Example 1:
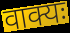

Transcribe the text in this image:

वाक्यः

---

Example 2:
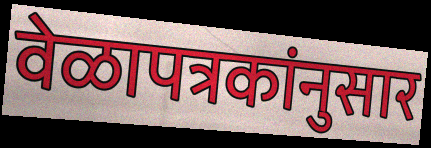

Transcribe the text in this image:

वेळापत्रकांनुसार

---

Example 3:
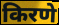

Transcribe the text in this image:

किरणे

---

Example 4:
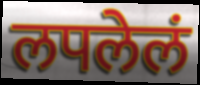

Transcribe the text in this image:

लपलेलं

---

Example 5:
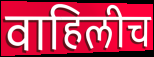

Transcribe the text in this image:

वाहिलीच